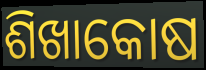
ଶିଖାକୋଷ